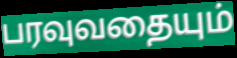
பரவுவதையும்